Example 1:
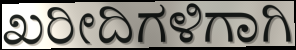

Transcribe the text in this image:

ಖರೀದಿಗಳಿಗಾಗಿ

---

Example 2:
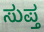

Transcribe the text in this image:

ಸುಪ್ತ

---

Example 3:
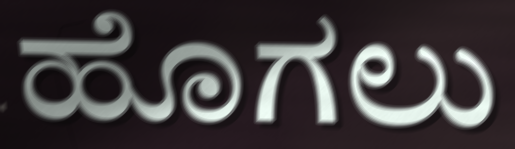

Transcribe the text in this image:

ಹೊಗಲು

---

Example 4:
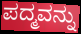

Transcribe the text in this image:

ಪದ್ಮವನ್ನು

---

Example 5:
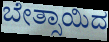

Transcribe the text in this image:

ಬೇತ್ಸಾಯಿದ